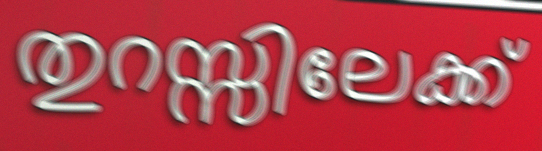
തുറസ്സിലേക്ക്